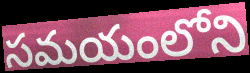
సమయంలోని